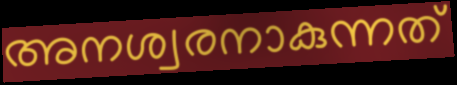
അനശ്വരനാകുന്നത്